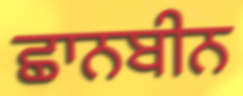
ਛਾਨਬੀਨ